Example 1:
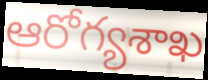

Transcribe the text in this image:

ఆరోగ్యశాఖ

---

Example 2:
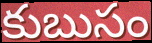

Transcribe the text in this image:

కుబుసం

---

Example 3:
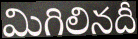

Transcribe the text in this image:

మిగిలినదీ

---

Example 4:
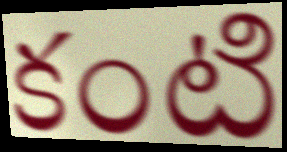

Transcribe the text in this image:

కంటి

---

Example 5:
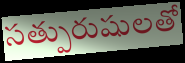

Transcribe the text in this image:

సత్పురుషులతో